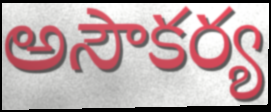
అసౌకర్య